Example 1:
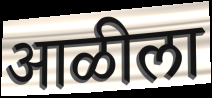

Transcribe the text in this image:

आळीला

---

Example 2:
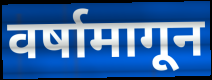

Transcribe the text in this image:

वर्षामागून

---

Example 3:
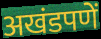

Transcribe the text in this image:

अखंडपणें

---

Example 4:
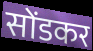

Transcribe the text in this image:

सोंडकर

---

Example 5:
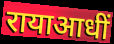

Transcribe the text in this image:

रायाआधीं